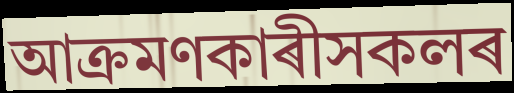
আক্ৰমণকাৰীসকলৰ